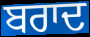
ਬਰਾਦ